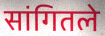
सांगितले